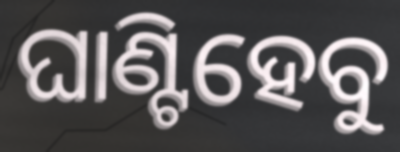
ଘାଣ୍ଟିହେବୁ